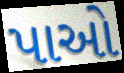
પાઓ